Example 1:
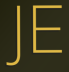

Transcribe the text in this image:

JE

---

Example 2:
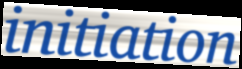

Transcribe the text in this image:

initiation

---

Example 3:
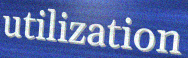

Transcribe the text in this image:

utilization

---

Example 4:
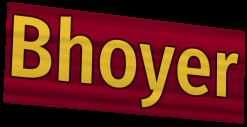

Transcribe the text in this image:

Bhoyer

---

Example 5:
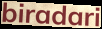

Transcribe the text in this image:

biradari